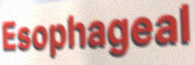
Esophageal